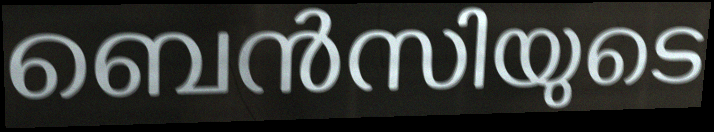
ബെൻസിയുടെ